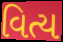
વિત્ય